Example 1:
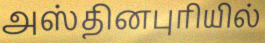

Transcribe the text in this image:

அஸ்தினபுரியில்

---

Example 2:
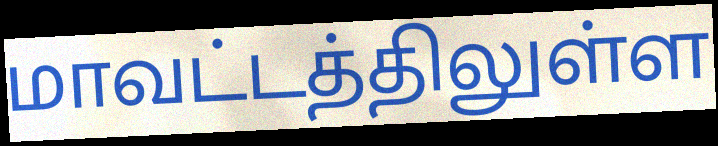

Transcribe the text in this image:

மாவட்டத்திலுள்ள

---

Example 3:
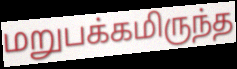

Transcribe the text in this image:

மறுபக்கமிருந்த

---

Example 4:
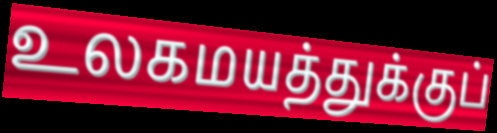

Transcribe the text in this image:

உலகமயத்துக்குப்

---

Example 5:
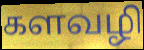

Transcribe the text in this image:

களவழி